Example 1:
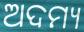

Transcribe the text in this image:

ଅଦମ୍ୟ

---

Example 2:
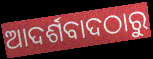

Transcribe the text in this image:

ଆଦର୍ଶବାଦଠାରୁ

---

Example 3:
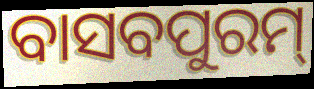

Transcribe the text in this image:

ବାସବପୁରମ୍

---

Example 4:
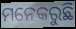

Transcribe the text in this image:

ମନେକରୁଛି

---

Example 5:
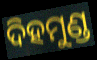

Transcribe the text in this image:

ଦିହମୁଣ୍ଡ